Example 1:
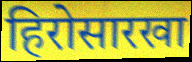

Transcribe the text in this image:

हिरोसारखा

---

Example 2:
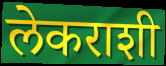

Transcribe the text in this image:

लेकराशी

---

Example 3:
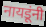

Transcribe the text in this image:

नायडूंनी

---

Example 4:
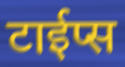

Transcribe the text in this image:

टाईप्स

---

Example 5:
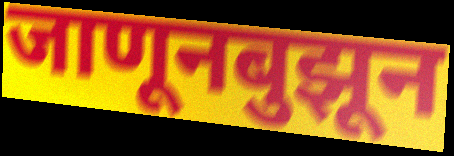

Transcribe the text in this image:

जाणूनबुझून